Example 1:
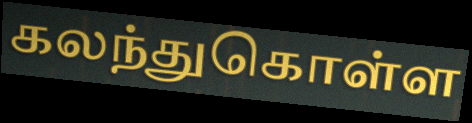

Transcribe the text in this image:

கலந்துகொள்ள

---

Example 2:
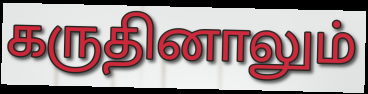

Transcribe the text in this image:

கருதினாலும்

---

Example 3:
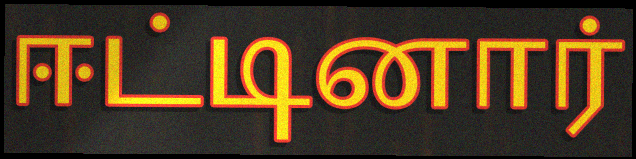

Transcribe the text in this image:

ஈட்டினார்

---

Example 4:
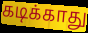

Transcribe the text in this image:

கடிக்காது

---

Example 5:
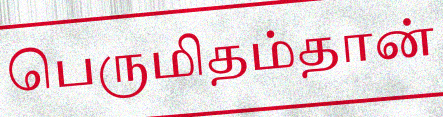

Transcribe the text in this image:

பெருமிதம்தான்